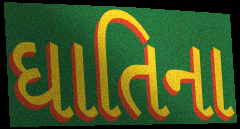
ઘાતિના